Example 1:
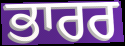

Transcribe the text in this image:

ਭਾਰਰ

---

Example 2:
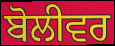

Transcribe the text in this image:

ਬੋਲੀਵਰ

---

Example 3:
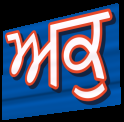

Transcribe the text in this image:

ਅਕੁ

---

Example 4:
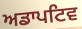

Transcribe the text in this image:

ਅਡਾਪਟਿਵ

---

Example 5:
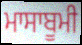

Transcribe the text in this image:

ਮਾਸਾਬੂਮੀ